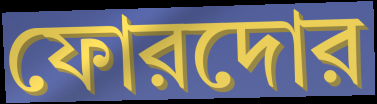
ফোরদোর